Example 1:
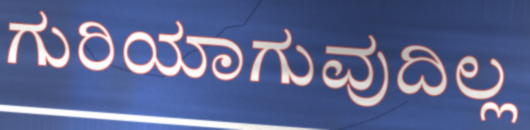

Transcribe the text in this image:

ಗುರಿಯಾಗುವುದಿಲ್ಲ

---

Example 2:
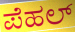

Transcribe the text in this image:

ಪೆಹಲ್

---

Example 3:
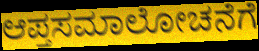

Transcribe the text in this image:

ಆಪ್ತಸಮಾಲೋಚನೆಗೆ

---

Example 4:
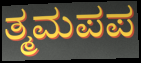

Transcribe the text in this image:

ತ್ಮಮಪಪ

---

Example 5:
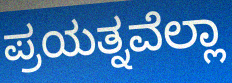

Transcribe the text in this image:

ಪ್ರಯತ್ನವೆಲ್ಲಾ